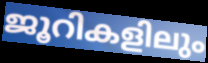
ജൂറികളിലും